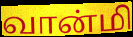
வான்மி